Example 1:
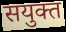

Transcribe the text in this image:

सयुक्त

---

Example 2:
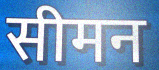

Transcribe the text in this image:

सीमन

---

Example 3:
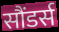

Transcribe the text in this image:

सौंडर्स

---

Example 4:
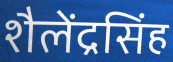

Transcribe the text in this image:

शैलेंद्रसिंह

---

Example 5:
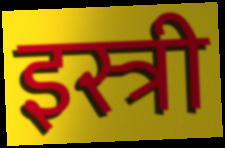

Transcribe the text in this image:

इस्त्री